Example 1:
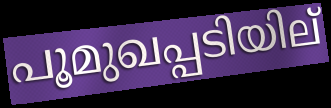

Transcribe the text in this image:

പൂമുഖപ്പടിയില്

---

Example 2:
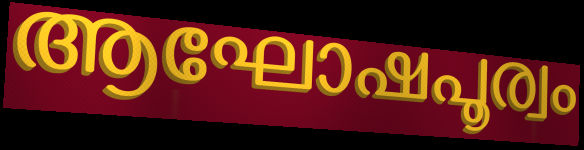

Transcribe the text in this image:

ആഘോഷപൂര്വം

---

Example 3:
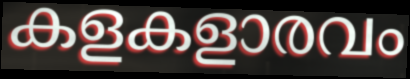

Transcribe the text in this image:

കളകളാരവം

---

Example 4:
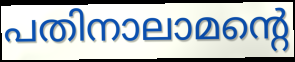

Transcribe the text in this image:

പതിനാലാമന്റെ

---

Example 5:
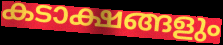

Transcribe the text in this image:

കടാക്ഷങ്ങളും